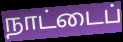
நாட்டைப்